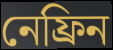
নেফ্রিন